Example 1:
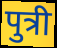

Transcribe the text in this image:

पुत्री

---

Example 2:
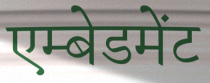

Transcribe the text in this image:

एम्बेडमेंट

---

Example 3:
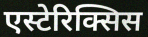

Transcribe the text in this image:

एस्टेरिक्सिस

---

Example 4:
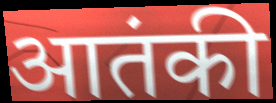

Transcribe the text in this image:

आतंकी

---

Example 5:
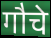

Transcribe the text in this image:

गौचे